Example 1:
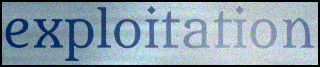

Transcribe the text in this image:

exploitation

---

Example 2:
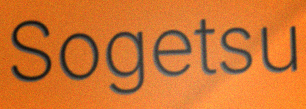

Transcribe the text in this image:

Sogetsu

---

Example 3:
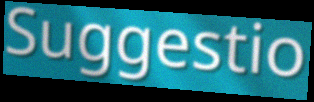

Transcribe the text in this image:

Suggestio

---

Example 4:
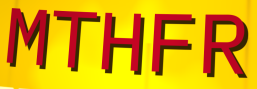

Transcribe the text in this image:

MTHFR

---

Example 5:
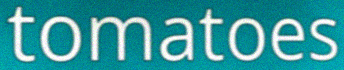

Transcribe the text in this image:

tomatoes